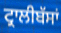
ਟ੍ਰਾਲੀਬੱਸਾਂ